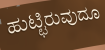
ಹುಟ್ಟಿರುವುದೂ